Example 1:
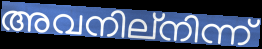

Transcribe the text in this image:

അവനില്നിന്ന്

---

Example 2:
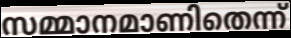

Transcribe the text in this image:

സമ്മാനമാണിതെന്ന്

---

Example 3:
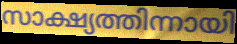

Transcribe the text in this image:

സാക്ഷ്യത്തിന്നായി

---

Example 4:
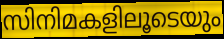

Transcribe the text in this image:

സിനിമകളിലൂടെയും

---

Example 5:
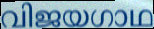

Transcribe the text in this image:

വിജയഗാഥ